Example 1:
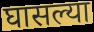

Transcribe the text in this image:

घासल्या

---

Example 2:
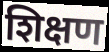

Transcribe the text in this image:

शिक्षण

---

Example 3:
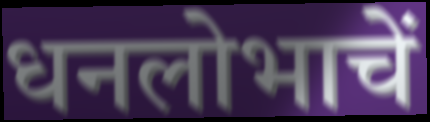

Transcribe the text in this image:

धनलोभाचें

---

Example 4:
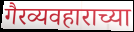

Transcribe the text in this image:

गैरव्यवहाराच्या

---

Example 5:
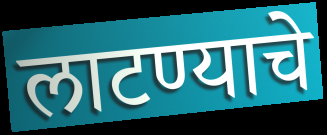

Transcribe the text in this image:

लाटण्याचे